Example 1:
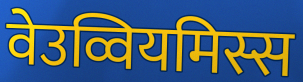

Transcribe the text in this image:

वेउव्वियमिस्स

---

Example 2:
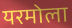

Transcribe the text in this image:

यरमोला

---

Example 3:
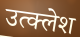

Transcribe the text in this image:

उत्क्लेश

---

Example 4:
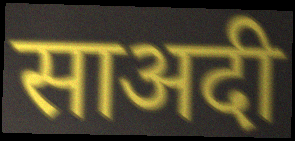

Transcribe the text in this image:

साअदी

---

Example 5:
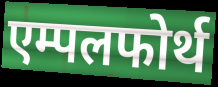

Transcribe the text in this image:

एम्पलफोर्थ